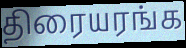
திரையரங்க